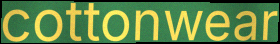
cottonwear